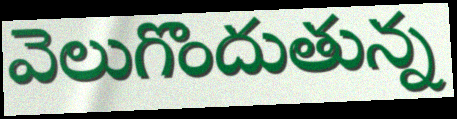
వెలుగొందుతున్న